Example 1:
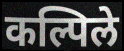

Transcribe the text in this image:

कल्पिले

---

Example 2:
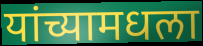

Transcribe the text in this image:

यांच्यामधला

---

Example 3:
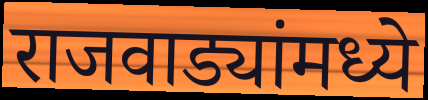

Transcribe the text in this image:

राजवाड्यांमध्ये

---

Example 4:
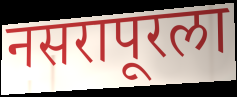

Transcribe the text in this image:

नसरापूरला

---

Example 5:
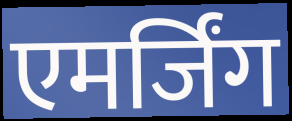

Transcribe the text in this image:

एमर्जिंग